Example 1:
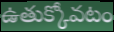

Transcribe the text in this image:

ఉతుక్కోవటం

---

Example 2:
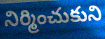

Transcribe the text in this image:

నిర్మించుకుని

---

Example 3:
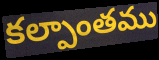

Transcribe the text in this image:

కల్పాంతము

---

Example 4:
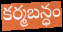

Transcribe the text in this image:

కర్మబన్ధం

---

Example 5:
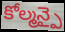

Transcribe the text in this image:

కోల్మన్పై